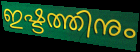
ഇഷ്ടത്തിനും